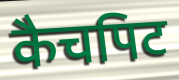
कैचपिट